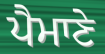
ਪੈਮਾਣੇ